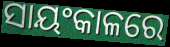
ସାୟଂକାଳରେ